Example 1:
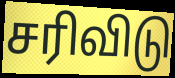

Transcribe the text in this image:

சரிவிடு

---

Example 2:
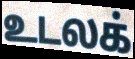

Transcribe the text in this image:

உடலக்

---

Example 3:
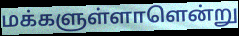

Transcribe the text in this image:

மக்களுள்ளாளென்று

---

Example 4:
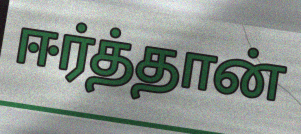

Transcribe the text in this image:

ஈர்த்தான்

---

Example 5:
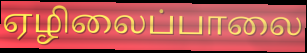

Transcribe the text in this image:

ஏழிலைப்பாலை